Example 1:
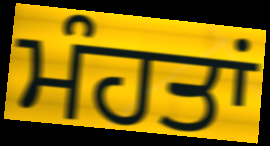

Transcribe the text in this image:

ਮੰਹਤਾਂ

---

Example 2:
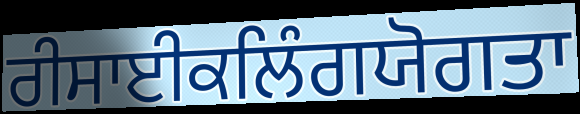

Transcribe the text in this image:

ਰੀਸਾਈਕਲਿੰਗਯੋਗਤਾ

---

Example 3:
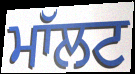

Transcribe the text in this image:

ਮਾੱਲਟ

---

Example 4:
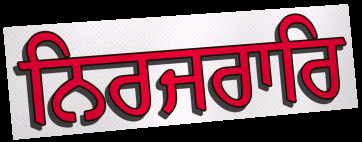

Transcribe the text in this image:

ਨਿਰਜਰਾਰਿ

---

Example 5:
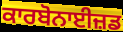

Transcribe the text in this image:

ਕਾਰਬੋਨਾਈਜ਼ਡ